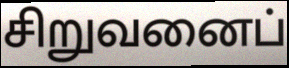
சிறுவனைப்